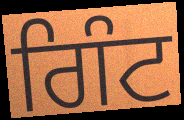
ਗਿੰਟ